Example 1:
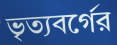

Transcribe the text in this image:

ভৃত্যবর্গের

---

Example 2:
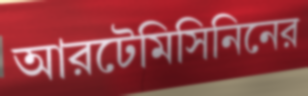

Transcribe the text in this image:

আরটেমিসিনিনের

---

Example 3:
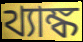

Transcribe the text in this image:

থ্যাঙ্ক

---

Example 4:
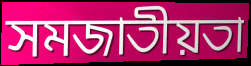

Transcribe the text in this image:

সমজাতীয়তা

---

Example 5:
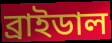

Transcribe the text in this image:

ব্রাইডাল